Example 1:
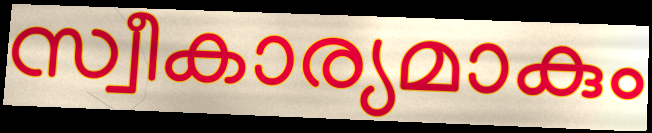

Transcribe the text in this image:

സ്വീകാര്യമാകും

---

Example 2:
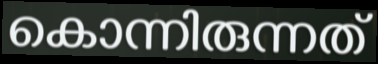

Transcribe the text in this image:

കൊന്നിരുന്നത്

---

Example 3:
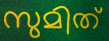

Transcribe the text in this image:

സുമിത്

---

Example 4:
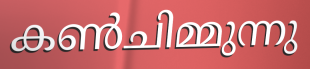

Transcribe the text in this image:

കൺചിമ്മുന്നു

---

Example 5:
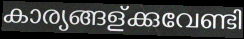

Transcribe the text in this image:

കാര്യങ്ങള്ക്കുവേണ്ടി